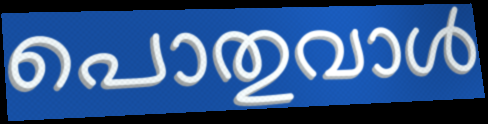
പൊതുവാൾ